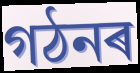
গঠনৰ